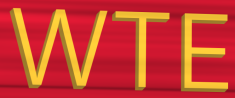
WTE